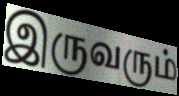
இருவரும்